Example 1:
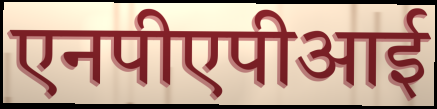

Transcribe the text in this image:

एनपीएपीआई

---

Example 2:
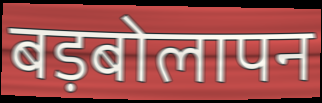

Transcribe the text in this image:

बड़बोलापन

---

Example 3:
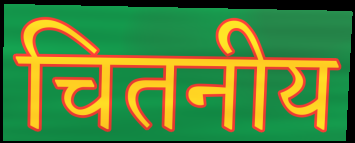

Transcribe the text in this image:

चितनीय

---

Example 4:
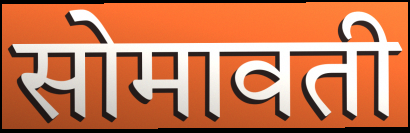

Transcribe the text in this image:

सोमावती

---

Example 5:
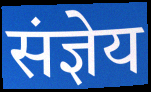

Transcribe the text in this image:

संज्ञेय